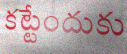
కట్టేందుకు